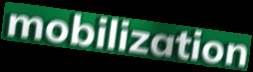
mobilization